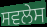
ਸਵਲੇਸ